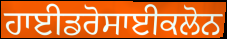
ਹਾਈਡਰੋਸਾਈਕਲੋਨ